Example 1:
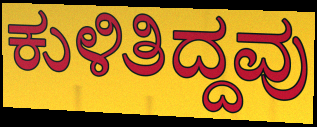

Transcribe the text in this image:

ಕುಳಿತಿದ್ದವು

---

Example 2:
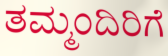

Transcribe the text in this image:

ತಮ್ಮಂದಿರಿಗೆ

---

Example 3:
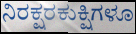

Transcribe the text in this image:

ನಿರಕ್ಷರಕುಕ್ಷಿಗಳೂ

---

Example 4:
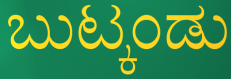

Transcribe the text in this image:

ಬುಟ್ಕಂಡು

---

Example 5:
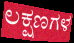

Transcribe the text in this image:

ಲಕ್ಷಣಗಳ